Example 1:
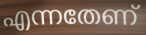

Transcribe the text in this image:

എന്നതേണ്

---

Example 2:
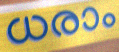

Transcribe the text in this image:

ധരാം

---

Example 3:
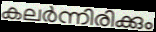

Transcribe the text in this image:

കലർന്നിരിക്കും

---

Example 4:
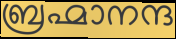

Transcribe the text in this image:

ബ്രഹ്മാനന്ദ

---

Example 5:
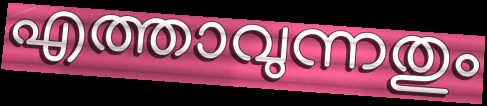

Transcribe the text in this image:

എത്താവുന്നതും